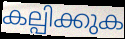
കല്പിക്കുക